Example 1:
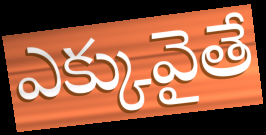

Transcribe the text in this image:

ఎక్కువైతే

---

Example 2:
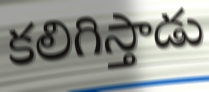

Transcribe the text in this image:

కలిగిస్తాడు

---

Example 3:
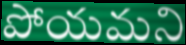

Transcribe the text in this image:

పోయమని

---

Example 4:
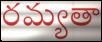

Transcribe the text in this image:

రమ్యతా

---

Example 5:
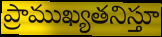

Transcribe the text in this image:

ప్రాముఖ్యతనిస్తూ